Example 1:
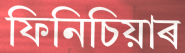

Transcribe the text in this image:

ফিনিচিয়াৰ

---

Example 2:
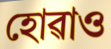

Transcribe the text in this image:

হোৱাও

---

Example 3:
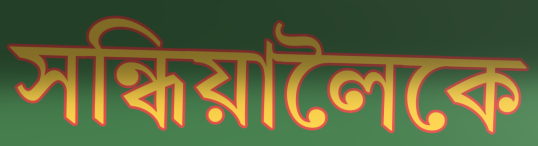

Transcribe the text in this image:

সন্ধিয়ালৈকে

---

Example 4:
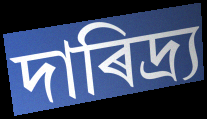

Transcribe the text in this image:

দাৰিদ্ৰ্য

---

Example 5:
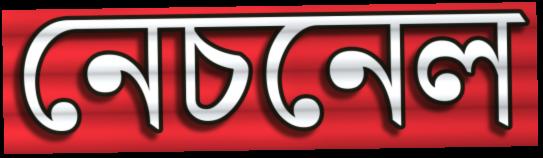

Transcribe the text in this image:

নেচনেল